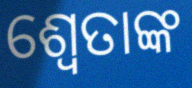
ଶ୍ଵେତାଙ୍କ